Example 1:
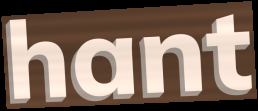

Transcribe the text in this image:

hant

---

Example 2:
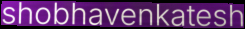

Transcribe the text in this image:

shobhavenkatesh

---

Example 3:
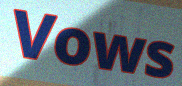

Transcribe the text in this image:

Vows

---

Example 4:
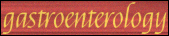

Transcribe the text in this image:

gastroenterology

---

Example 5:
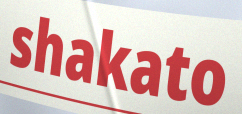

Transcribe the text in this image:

shakato